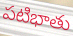
పటిభాతు